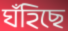
ঘঁহিছে